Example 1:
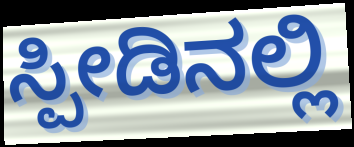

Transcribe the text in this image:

ಸ್ಪೀಡಿನಲ್ಲಿ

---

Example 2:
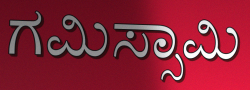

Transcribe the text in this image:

ಗಮಿಸ್ಸಾಮಿ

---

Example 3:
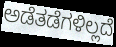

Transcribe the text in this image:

ಅಡೆತಡೆಗಳಿಲ್ಲದೆ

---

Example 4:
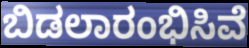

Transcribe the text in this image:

ಬಿಡಲಾರಂಭಿಸಿವೆ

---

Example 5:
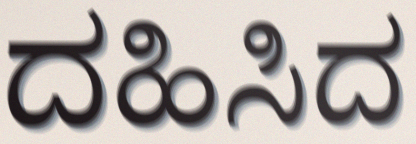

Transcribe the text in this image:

ದಹಿಸಿದ